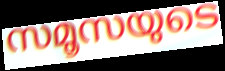
സമൂസയുടെ